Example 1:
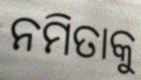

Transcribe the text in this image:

ନମିତାକୁ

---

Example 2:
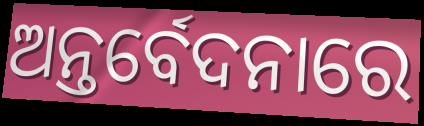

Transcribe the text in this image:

ଅନ୍ତର୍ବେଦନାରେ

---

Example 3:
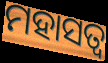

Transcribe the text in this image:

ମହାସତ୍ୱ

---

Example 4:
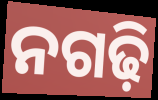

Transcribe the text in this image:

ନଗଢ଼ି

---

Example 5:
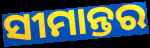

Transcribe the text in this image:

ସୀମାନ୍ତର